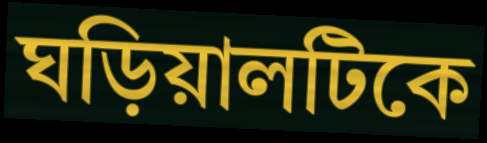
ঘড়িয়ালটিকে